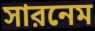
সারনেম